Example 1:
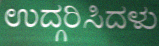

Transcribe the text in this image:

ಉದ್ಗರಿಸಿದಳು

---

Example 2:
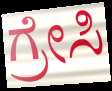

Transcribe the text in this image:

ಗ್ರೇಸಿ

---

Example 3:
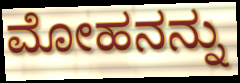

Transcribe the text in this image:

ಮೋಹನನ್ನು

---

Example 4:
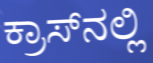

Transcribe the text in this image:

ಕ್ರಾಸ್‌ನಲ್ಲಿ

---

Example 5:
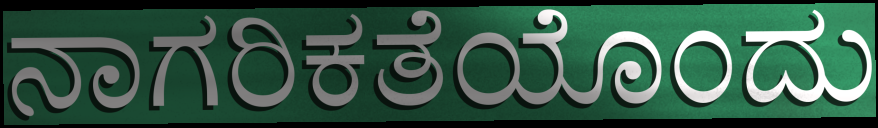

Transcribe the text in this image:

ನಾಗರಿಕತೆಯೊಂದು